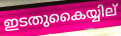
ഇടതുകൈയ്യില്